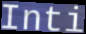
Inti